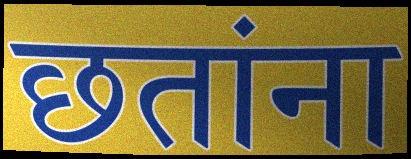
छतांना